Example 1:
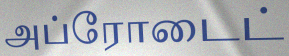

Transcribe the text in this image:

அப்ரோடைட்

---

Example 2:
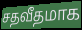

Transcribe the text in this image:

சதவீதமாக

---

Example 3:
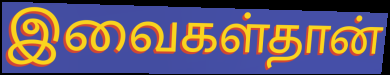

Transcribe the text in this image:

இவைகள்தான்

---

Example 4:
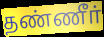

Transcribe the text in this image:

தண்ணீர்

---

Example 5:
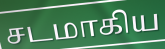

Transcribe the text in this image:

சடமாகிய